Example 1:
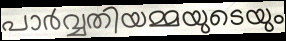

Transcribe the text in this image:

പാർവ്വതിയമ്മയുടെയും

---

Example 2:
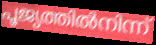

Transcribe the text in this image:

പൂജ്യത്തിൽനിന്ന്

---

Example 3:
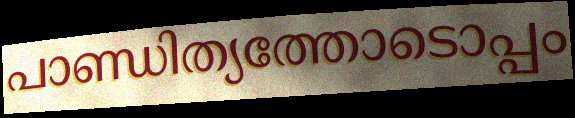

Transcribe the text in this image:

പാണ്ഡിത്യത്തോടൊപ്പം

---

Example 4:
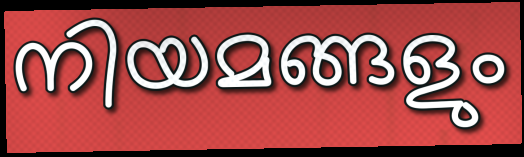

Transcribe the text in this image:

നിയമങ്ങളും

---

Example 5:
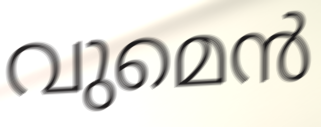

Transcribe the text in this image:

വുമെൻ